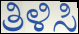
ತಿಳಿಸಿ